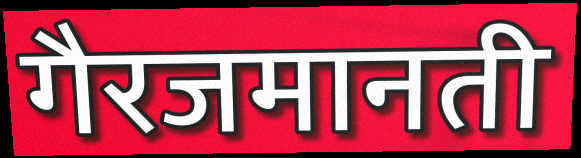
गैरजमानती